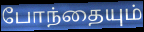
போந்தையும்